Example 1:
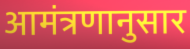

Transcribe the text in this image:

आमंत्रणानुसार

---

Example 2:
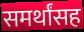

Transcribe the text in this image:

समर्थांसह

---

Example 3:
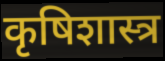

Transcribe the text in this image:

कृषिशास्त्र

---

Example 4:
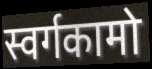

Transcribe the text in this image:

स्वर्गकामो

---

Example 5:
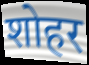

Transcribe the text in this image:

शोहर